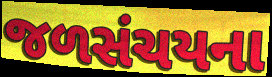
જળસંચયના